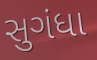
સુગંધા